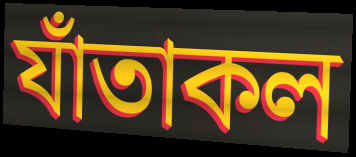
যাঁতাকল